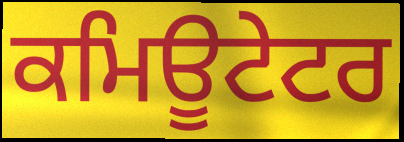
ਕਮਿਊਟੇਟਰ